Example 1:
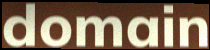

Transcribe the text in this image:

domain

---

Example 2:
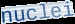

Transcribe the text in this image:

nuclei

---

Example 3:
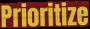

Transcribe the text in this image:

Prioritize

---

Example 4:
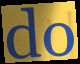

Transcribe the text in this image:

do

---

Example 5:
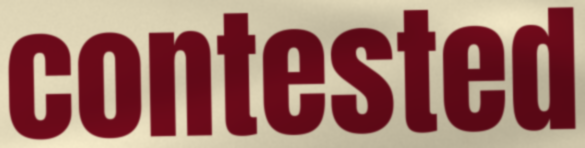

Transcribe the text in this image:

contested